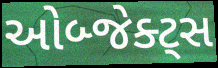
ઓબ્જેક્ટ્સ